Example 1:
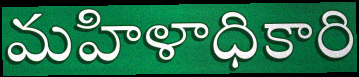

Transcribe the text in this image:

మహిళాధికారి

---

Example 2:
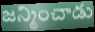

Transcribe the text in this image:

జన్మించాడు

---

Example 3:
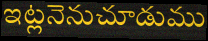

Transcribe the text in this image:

ఇట్లనెనుచూడుము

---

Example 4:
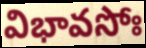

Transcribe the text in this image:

విభావసోః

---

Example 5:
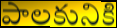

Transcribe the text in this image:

పాలకునికి